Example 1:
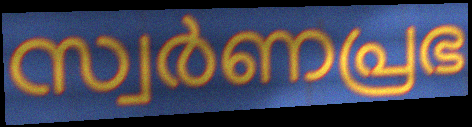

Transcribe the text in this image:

സ്വർണപ്രഭ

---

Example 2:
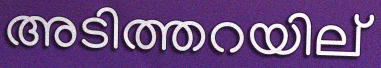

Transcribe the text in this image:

അടിത്തറയില്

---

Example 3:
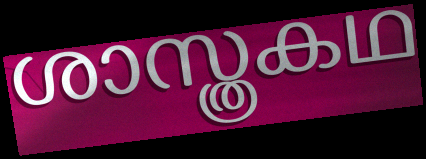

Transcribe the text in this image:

ശാസ്ത്രകഥ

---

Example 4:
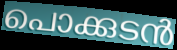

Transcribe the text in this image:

പൊക്കുടൻ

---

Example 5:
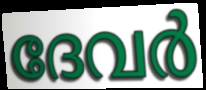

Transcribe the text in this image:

ദേവർ